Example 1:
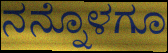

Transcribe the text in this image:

ನನ್ನೊಳಗೂ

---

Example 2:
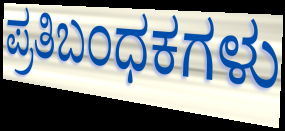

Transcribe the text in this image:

ಪ್ರತಿಬಂಧಕಗಳು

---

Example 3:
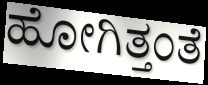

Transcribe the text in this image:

ಹೋಗಿತ್ತಂತೆ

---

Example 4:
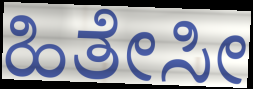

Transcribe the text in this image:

ಹಿತೇಸೀ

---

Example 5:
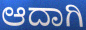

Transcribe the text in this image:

ಆದಾಗಿ